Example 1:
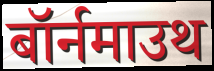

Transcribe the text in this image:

बॉर्नमाउथ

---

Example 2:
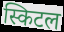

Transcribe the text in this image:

स्किटल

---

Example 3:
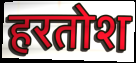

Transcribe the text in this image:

हरतोश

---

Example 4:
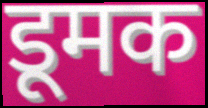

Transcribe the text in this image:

डूमक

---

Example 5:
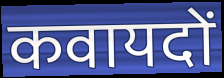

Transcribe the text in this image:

कवायदों